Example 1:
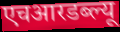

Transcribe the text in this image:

एचआरडब्ल्यू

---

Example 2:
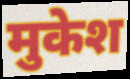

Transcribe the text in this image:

मुकेश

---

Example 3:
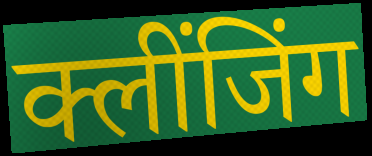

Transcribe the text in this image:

क्लींजिंग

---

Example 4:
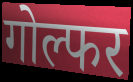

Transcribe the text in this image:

गोल्फर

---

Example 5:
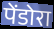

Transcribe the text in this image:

पेंडोरा